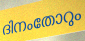
ദിനംതോറും